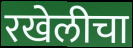
रखेलीचा